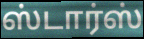
ஸ்டார்ஸ்